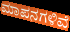
ಮಾಪನಗಳಿವೆ